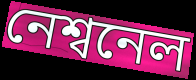
নেশ্বনেল